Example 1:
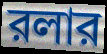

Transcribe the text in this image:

রলার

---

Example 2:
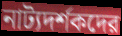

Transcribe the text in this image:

নাট্যদর্শকদের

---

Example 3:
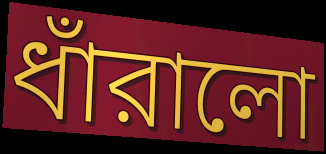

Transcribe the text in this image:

ধাঁরালো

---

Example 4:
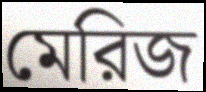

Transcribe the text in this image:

মেরিজ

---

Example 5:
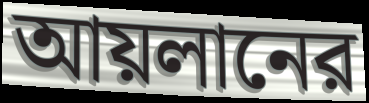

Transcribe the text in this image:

আয়লানের